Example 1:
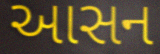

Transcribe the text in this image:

આસન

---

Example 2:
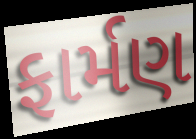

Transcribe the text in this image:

ફાર્મણ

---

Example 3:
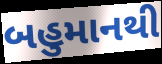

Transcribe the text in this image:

બહુમાનથી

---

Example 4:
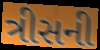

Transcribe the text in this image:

ત્રીસની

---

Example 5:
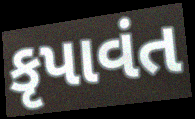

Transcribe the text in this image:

કૃપાવંત